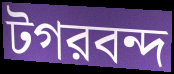
টগরবন্দ